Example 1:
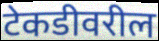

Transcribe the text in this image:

टेकडीवरील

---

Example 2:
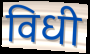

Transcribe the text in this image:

विधी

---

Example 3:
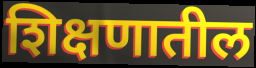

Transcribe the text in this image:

शिक्षणातील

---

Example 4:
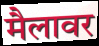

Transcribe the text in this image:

मैलावर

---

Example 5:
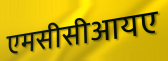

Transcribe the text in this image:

एमसीसीआयए